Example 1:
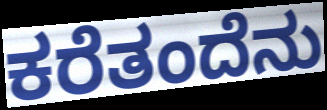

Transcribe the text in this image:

ಕರೆತಂದೆನು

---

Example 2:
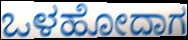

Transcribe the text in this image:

ಒಳಹೋದಾಗ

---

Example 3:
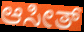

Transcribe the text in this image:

ಆಸೀತ್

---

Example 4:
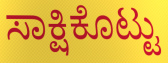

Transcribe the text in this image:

ಸಾಕ್ಷಿಕೊಟ್ಟು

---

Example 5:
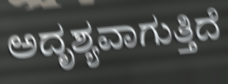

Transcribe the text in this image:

ಅದೃಶ್ಯವಾಗುತ್ತಿದೆ